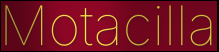
Motacilla